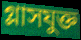
গ্লাসযুক্ত